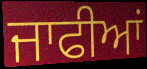
ਜਾਫੀਆਂ